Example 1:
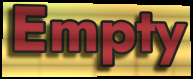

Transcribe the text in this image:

Empty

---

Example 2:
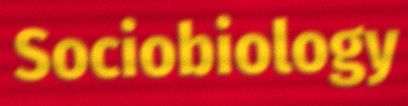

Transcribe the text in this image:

Sociobiology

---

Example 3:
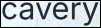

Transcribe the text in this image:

cavery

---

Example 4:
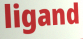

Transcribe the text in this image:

ligand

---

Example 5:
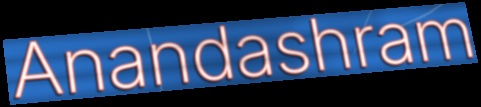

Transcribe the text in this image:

Anandashram